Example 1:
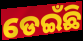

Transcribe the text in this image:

ଡେଇଁଛି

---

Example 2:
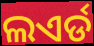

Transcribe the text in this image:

ଲଏର୍ଡ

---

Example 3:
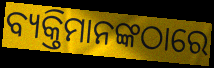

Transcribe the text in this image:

ବ୍ୟକ୍ତିମାନଙ୍କଠାରେ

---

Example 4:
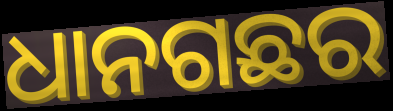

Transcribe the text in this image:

ଧାନଗଛର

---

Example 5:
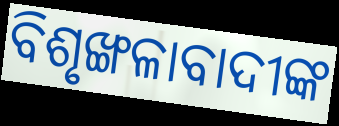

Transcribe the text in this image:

ବିଶୃଙ୍ଖଳାବାଦୀଙ୍କ